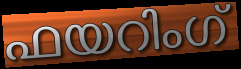
ഫയറിംഗ്